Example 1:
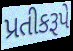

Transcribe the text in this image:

પ્રતીકરૂપે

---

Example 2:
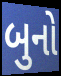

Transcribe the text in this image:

બુનો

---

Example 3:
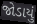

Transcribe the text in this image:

જોડાયું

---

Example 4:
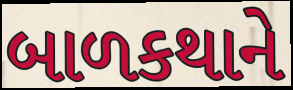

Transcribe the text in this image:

બાળકથાને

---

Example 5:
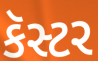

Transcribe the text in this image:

કૅસ્ટર